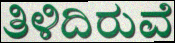
ತಿಳಿದಿರುವೆ